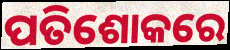
ପତିଶୋକରେ